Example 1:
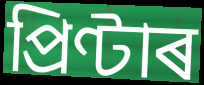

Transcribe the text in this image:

প্ৰিণ্টাৰ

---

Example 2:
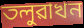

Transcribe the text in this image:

তলুৱাখন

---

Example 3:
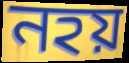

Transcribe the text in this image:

নহয়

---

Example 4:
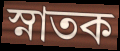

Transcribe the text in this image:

স্নাতক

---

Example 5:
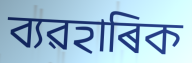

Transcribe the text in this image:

ব্যৱহাৰিক